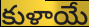
కుళాయే